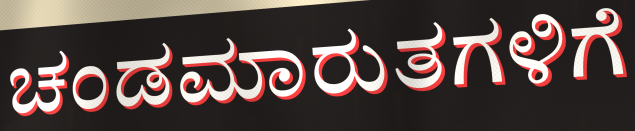
ಚಂಡಮಾರುತಗಳಿಗೆ